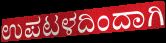
ಉಪಟಳದಿಂದಾಗಿ